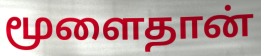
மூளைதான்